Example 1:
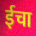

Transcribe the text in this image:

ईचा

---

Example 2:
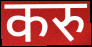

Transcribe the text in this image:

करु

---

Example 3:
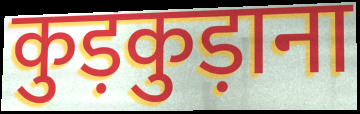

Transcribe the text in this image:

कुड़कुड़ाना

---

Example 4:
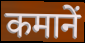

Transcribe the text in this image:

कमानें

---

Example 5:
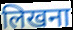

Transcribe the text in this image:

लिखना